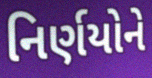
નિર્ણયોને